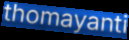
thomayanti